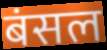
बंसल